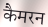
कैमरन